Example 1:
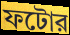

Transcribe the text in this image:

ফটোর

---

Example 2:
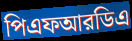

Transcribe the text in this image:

পিএফআরডিএ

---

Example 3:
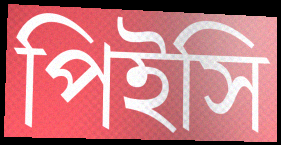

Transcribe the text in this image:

পিইসি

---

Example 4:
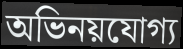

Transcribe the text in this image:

অভিনয়যোগ্য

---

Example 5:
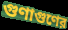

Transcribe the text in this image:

গুণাগুণের